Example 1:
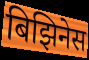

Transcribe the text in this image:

बिझिनेस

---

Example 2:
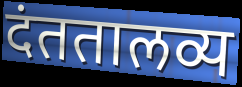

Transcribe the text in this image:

दंततालव्य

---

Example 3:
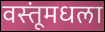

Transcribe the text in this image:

वस्तूंमधला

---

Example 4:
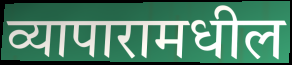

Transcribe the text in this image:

व्यापारामधील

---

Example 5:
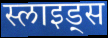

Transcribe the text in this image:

स्लाइड्स